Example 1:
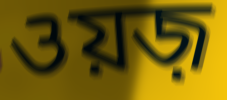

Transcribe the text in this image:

ওয়জ়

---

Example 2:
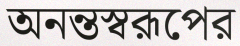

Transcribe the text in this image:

অনন্তস্বরূপের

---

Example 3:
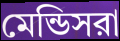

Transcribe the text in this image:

মেন্ডিসরা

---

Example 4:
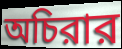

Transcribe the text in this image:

অচিরার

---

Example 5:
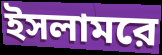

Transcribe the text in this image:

ইসলামরে